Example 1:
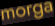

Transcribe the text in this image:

morga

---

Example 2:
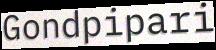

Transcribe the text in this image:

Gondpipari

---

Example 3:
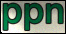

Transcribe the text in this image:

ppn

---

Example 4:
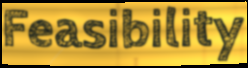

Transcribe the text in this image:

Feasibility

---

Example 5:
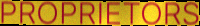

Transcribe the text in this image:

PROPRIETORS